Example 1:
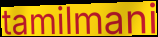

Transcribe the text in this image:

tamilmani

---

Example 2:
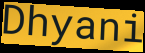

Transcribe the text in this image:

Dhyani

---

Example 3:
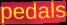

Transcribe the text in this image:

pedals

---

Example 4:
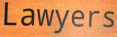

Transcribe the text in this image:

Lawyers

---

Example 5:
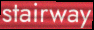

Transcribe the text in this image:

stairway